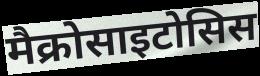
मैक्रोसाइटोसिस